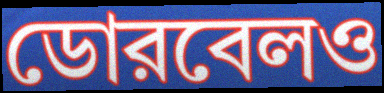
ডোরবেলও